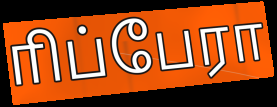
ரிப்பேரா